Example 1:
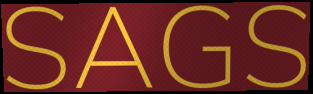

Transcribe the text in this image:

SAGS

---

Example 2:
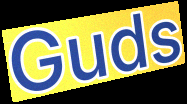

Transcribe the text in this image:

Guds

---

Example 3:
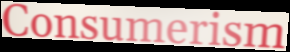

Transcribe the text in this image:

Consumerism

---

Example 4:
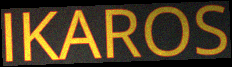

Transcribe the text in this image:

IKAROS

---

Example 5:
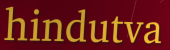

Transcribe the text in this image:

hindutva